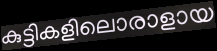
കുട്ടികളിലൊരാളായ